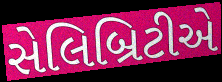
સેલિબ્રિટીએ